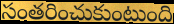
సంతరించుకుంటుంది